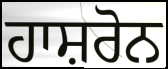
ਹਾਸ਼ਰੋਨ